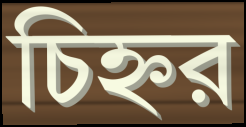
চিহ্নর